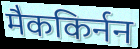
मैककिर्नन